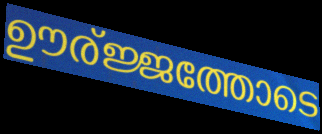
ഊര്ജ്ജത്തോടെ